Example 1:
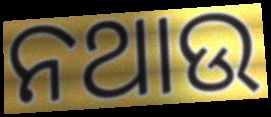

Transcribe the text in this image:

ନଥାଉ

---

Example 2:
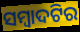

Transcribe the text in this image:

ସମ୍ବାଦଟିର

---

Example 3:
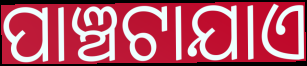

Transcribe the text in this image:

ପାଞ୍ଚଟାଯାଏ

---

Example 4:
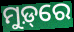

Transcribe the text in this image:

ମୁଡ଼୍‌ରେ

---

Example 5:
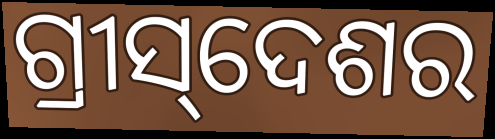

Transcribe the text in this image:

ଗ୍ରୀସ୍‌ଦେଶର